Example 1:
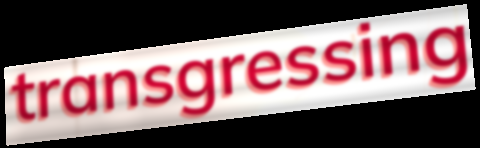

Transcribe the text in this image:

transgressing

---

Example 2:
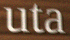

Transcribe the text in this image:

uta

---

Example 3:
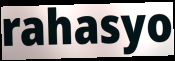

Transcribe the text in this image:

rahasyo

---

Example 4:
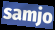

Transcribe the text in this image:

samjo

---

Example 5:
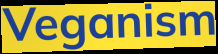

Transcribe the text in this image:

Veganism